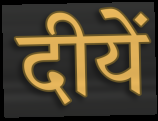
दीयें